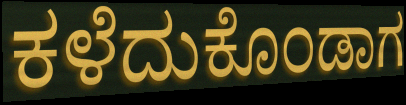
ಕಳೆದುಕೊಂಡಾಗ